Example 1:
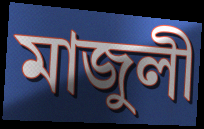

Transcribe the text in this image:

মাজুলী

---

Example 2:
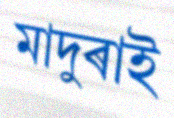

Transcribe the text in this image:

মাদুৰাই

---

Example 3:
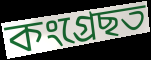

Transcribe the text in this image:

কংগ্ৰেছত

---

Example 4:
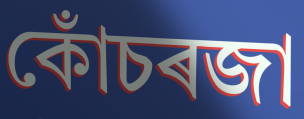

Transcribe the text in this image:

কোঁচৰজা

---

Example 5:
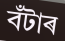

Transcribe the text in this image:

বঁটাৰ